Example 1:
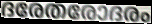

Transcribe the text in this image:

ദരേതരോദരം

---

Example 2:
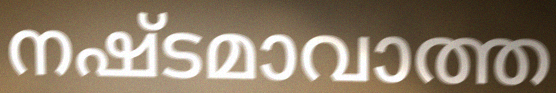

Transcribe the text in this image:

നഷ്ടമാവാത്ത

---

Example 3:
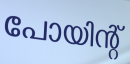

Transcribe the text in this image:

പോയിന്റ്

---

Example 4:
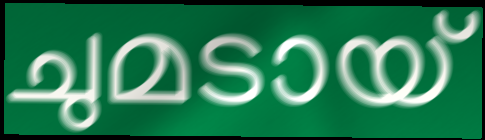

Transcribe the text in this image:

ചുമടായ്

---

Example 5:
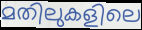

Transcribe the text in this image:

മതിലുകളിലെ